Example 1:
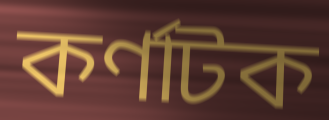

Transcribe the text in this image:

কৰ্ণাটক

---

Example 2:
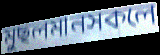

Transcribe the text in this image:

মুছলমানসকলে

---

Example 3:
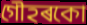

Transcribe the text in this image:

গৌহৰকো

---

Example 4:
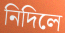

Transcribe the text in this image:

নিদিলে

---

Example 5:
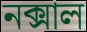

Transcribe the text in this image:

নক্সাল